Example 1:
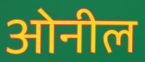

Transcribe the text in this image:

ओनील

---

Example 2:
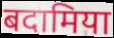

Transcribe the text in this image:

बदामिया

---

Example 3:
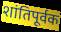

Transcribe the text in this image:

शांतिपूर्वक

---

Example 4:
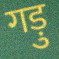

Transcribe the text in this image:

गड़ु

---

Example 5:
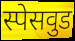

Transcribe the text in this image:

स्पेसवुड